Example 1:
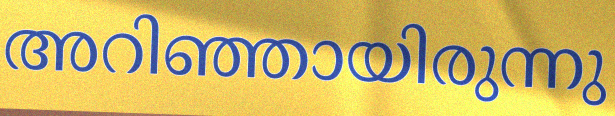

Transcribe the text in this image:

അറിഞ്ഞായിരുന്നു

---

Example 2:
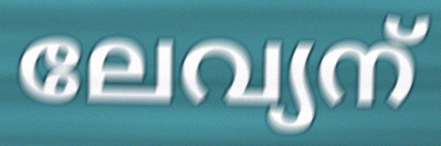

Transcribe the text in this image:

ലേവ്യന്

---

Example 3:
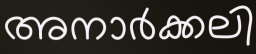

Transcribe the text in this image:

അനാർക്കലി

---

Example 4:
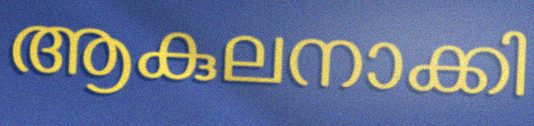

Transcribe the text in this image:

ആകുലനാക്കി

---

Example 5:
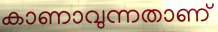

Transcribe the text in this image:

കാണാവുന്നതാണ്